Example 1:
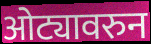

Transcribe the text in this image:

ओट्यावरुन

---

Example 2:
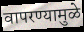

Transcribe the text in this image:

वापरण्यामुळे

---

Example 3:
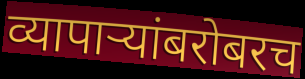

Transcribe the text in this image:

व्यापाऱ्यांबरोबरच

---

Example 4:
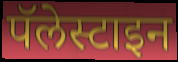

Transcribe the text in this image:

पॅलेस्टाइन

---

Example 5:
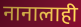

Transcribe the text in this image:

नानालाही